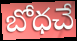
బోధచే